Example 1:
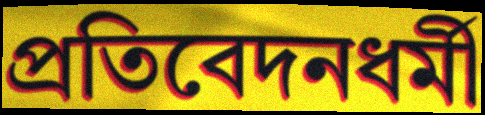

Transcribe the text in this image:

প্রতিবেদনধর্মী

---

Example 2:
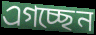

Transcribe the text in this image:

এগচ্ছেন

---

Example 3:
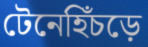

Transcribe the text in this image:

টেনেহিঁচড়ে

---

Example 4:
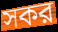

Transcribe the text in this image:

সকর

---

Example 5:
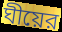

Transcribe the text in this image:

ঘীয়ের